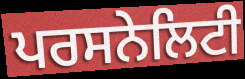
ਪਰਸਨੇਲਿਟੀ